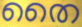
തൈ